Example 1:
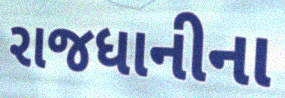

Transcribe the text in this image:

રાજધાનીના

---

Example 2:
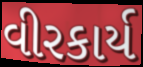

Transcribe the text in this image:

વીરકાર્ય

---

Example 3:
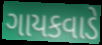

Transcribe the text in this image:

ગાયકવાડે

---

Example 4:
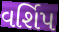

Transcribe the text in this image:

વર્શિપ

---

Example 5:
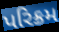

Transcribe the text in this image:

પરિક્રમ